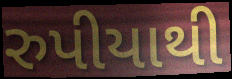
રુપીયાથી